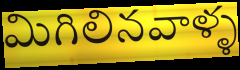
మిగిలినవాళ్ళ